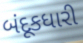
બંદૂકધારી